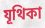
যূথিকা